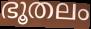
ഭൂതലം